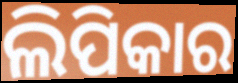
ଲିପିକାର